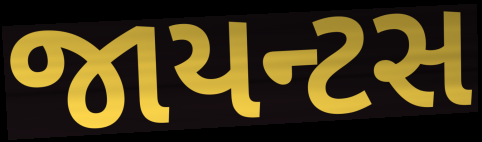
જાયન્ટસ